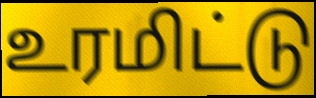
உரமிட்டு